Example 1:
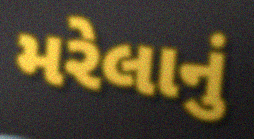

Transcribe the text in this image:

મરેલાનું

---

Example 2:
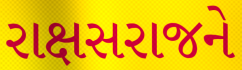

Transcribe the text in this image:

રાક્ષસરાજને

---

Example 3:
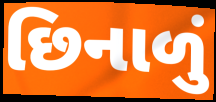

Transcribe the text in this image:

છિનાળું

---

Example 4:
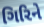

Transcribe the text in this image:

ગિરિને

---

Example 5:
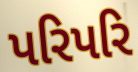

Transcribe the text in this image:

પરિપરિ